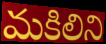
మకిలిని